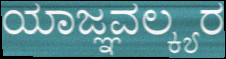
ಯಾಜ್ಞವಲ್ಕ್ಯರ